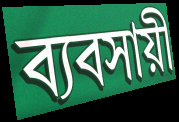
ব্যবসায়ী